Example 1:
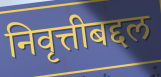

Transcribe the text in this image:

निवृत्तीबद्दल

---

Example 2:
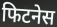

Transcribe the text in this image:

फिटनेस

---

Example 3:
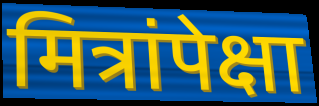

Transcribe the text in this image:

मित्रांपेक्षा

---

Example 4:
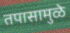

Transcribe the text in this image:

तपासामुळे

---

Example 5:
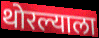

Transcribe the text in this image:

थोरल्याला